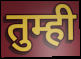
तुम्ही